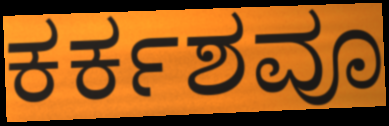
ಕರ್ಕಶವೂ